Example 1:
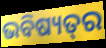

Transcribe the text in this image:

ଭବିଷ୍ୟତ୍‌ର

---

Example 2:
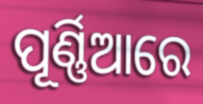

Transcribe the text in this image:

ପୂର୍ଣ୍ଣିଆରେ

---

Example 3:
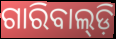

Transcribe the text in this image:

ଗାରିବାଲ୍‌ଡ଼ି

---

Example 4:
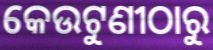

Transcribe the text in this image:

କେଉଟୁଣୀଠାରୁ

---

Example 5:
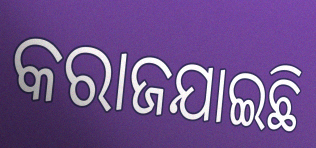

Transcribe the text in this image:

କରାଜଯାଇଛି